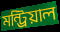
মন্ট্রিয়াল